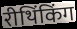
रीथिंकिंग